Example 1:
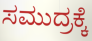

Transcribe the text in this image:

ಸಮುದ್ರಕ್ಕೆ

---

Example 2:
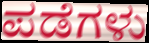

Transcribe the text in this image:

ಪಡೆಗಳು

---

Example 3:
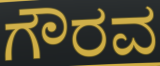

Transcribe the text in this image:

ಗೌರವ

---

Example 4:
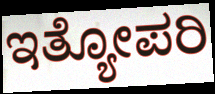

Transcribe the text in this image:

ಇತ್ಯೋಪರಿ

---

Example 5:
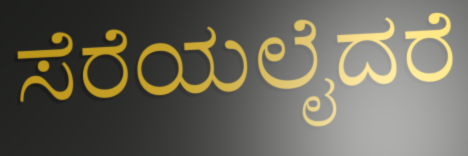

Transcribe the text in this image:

ಸೆರೆಯಲೈದರೆ